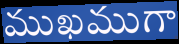
ముఖముగా